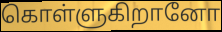
கொள்ளுகிறானோ